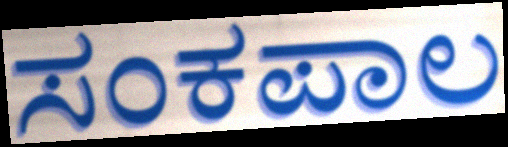
ಸಂಕಪಾಲ